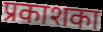
प्रकाशका